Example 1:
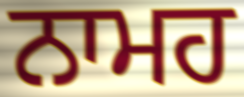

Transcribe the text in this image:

ਨਾਮਹ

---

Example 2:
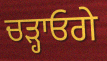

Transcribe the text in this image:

ਚੜ੍ਹਾਓਗੇ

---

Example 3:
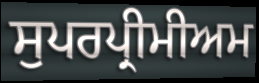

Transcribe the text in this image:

ਸੁਪਰਪ੍ਰੀਮੀਅਮ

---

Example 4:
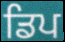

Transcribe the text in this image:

ਡਿਪ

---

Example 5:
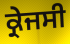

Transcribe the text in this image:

ਕ੍ਰੇਜਸੀ